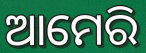
ଆମେରି